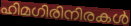
ഹിമഗിരിനിരകൾ